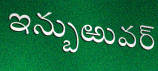
ఇన్బుఱువర్